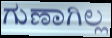
ಗುಣಾಗಿಲ್ಲ